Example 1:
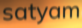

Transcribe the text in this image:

satyam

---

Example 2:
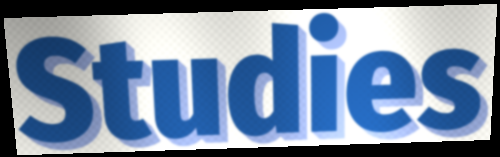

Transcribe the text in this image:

Studies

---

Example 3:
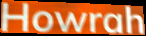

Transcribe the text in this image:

Howrah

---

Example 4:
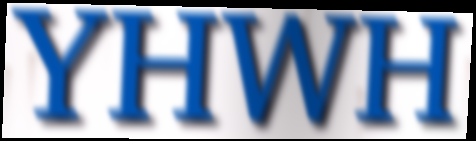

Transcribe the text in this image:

YHWH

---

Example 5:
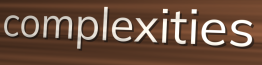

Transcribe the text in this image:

complexities